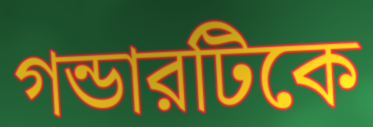
গন্ডারটিকে